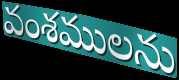
వంశములను